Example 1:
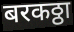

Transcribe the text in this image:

बरकठ्ठा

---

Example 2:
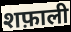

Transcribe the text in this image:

शफ़ाली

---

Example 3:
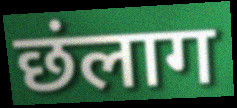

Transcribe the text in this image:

छंलाग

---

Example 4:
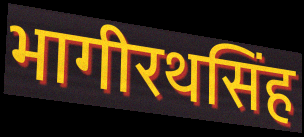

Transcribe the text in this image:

भागीरथसिंह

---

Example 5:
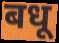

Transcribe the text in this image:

बधू